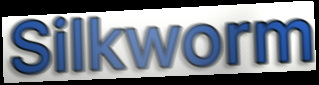
Silkworm